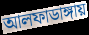
আলফাডাঙ্গায়